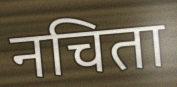
नचिता